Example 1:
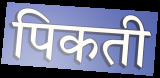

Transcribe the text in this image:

पिकती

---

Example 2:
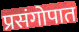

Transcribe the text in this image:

प्रसंगोपात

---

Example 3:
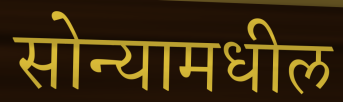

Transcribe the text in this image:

सोन्यामधील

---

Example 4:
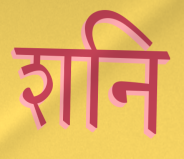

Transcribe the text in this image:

शनि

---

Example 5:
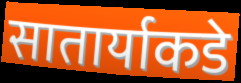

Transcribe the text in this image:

सातार्याकडे